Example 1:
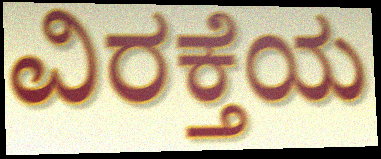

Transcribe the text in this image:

ವಿರಕ್ತೆಯ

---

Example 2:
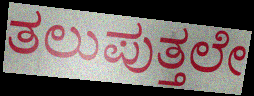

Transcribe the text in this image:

ತಲುಪುತ್ತಲೇ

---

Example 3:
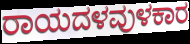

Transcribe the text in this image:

ರಾಯದಳವುಳಕಾರ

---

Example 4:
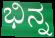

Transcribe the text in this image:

ಭಿನ್ನ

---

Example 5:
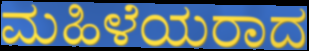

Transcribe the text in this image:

ಮಹಿಳೆಯರಾದ